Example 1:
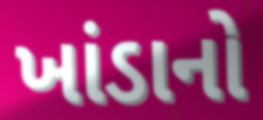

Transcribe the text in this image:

ખાંડાનો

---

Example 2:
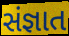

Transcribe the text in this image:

સંજ્ઞાત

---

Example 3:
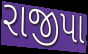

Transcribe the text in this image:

રાજીપા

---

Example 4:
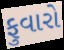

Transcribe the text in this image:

ફુવારો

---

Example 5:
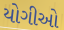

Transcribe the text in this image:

યોગીઓ